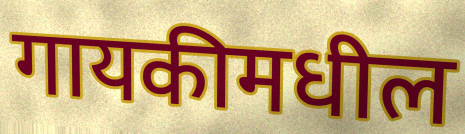
गायकीमधील